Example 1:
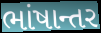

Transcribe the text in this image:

ભાંષાન્તર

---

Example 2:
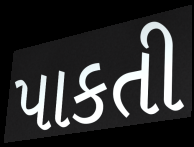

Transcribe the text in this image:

પાકતી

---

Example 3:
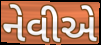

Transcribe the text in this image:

નેવીએ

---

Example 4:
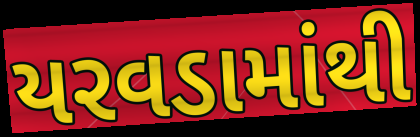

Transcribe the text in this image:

યરવડામાંથી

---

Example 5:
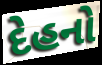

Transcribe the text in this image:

દેહનો